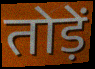
तोड़ें